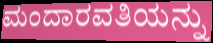
ಮಂದಾರವತಿಯನ್ನು